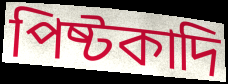
পিষ্টকাদি